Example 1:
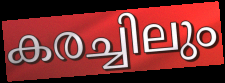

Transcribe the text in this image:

കരച്ചിലും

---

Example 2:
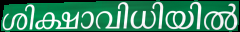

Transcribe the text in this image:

ശിക്ഷാവിധിയിൽ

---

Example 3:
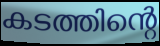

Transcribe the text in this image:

കടത്തിന്റെ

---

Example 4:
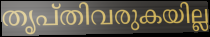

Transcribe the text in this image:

തൃപ്തിവരുകയില്ല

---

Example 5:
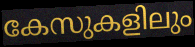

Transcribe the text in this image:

കേസുകളിലും